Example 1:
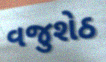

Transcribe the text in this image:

વજુશેઠ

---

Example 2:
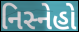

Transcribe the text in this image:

નિસ્નેહો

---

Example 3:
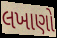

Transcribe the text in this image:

લખાણો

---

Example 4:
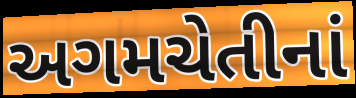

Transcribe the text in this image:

અગમચેતીનાં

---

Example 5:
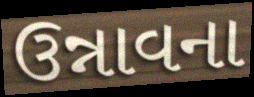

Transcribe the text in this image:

ઉન્નાવના